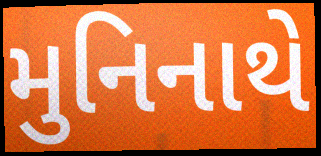
મુનિનાથે